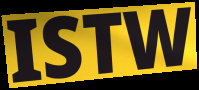
ISTW